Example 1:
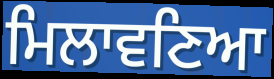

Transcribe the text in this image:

ਮਿਲਾਵਣਿਆ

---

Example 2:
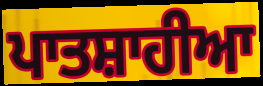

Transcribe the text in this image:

ਪਾਤਸ਼ਾਹੀਆ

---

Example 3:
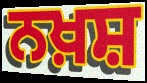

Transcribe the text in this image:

ਨਖ਼ਸ਼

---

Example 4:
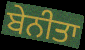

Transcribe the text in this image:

ਬੇਨੀਤਾ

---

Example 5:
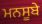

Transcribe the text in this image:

ਮਨਸੂਬੇ